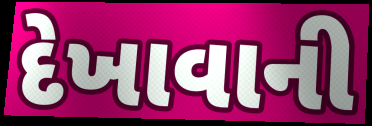
દેખાવાની